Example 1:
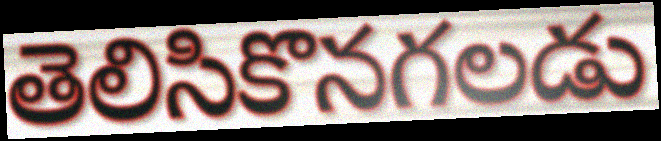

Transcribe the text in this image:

తెలిసికొనగలడు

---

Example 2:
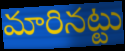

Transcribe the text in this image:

మారినట్టు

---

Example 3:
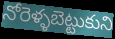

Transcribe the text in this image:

నోరెళ్ళబెట్టుకుని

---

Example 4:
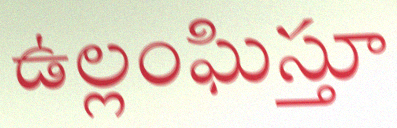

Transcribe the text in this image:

ఉల్లంఘిస్తూ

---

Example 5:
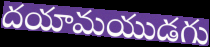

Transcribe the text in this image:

దయామయుడగు